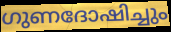
ഗുണദോഷിച്ചും